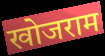
खोजराम